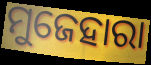
ମୁଜେହାରା